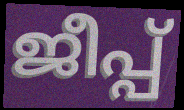
ജീപ്പ്